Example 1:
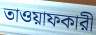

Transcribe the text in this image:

তাওয়াফকারী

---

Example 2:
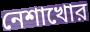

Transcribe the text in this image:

নেশাখোর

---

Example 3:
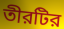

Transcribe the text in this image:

তীরটির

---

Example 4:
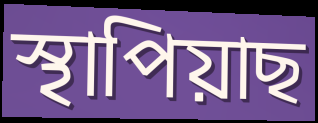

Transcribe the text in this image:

স্থাপিয়াছ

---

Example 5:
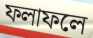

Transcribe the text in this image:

ফলাফলে